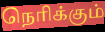
நெரிக்கும்